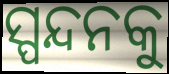
ସ୍ପନ୍ଦନକୁ